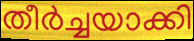
തീർച്ചയാക്കി